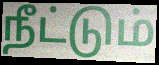
நீட்டும்